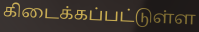
கிடைக்கப்பட்டுள்ள